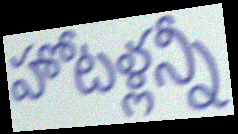
హోటళ్లన్నీ